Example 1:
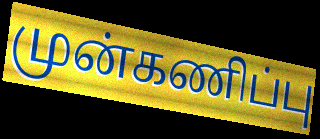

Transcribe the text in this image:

முன்கணிப்பு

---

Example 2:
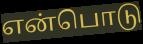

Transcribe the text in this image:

என்பொடு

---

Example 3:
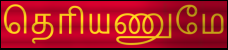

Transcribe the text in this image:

தெரியணுமே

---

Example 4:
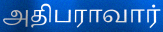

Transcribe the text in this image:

அதிபராவார்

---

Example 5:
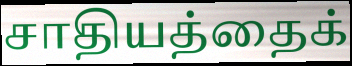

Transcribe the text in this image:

சாதியத்தைக்